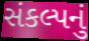
સંકલ્પનું